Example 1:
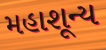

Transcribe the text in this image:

મહાશૂન્ય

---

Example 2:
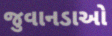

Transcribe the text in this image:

જુવાનડાઓ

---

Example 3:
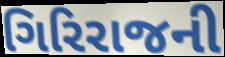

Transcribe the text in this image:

ગિરિરાજની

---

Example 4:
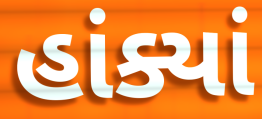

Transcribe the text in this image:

હાંક્યાં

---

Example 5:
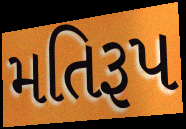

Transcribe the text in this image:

મતિરૂપ